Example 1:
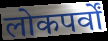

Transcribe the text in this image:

लोकपर्वों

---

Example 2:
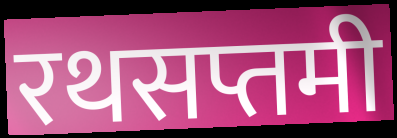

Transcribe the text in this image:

रथसप्तमी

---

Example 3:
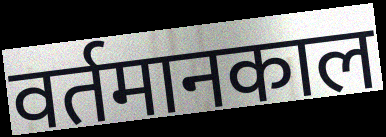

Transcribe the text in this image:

वर्तमानकाल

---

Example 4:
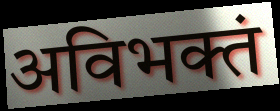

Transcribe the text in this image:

अविभक्तं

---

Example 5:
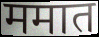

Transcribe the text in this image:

ममात